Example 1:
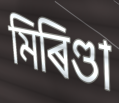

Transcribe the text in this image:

মিৰিণ্ডা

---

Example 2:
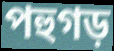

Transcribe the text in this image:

পহুগড়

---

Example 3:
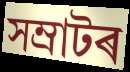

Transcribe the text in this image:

সম্ৰাটৰ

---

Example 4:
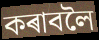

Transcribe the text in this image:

কৰাবলৈ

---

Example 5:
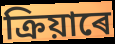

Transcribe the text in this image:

ক্ৰিয়াৰে